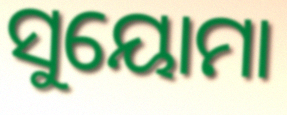
ସୁୟୋମା